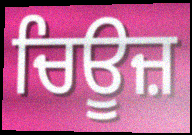
ਚਿਊਜ਼